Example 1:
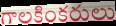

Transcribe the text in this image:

గాలకింకరులు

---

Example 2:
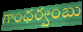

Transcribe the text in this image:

గాంధర్వంబు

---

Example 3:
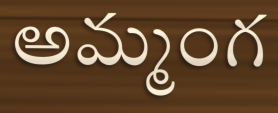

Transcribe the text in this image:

అమ్మంగ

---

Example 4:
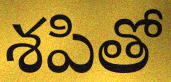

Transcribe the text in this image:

శపితో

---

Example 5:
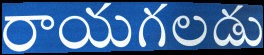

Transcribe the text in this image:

రాయగలడు